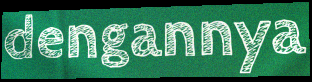
dengannya